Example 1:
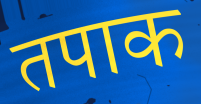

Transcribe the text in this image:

तपाक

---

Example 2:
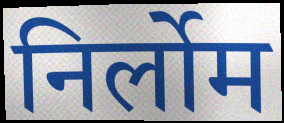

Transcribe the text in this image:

निर्लोम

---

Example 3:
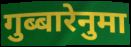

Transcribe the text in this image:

गुब्बारेनुमा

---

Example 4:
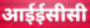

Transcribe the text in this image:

आईईसीसी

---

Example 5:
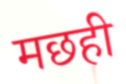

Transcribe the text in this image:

मछही